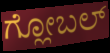
ಗ್ಲೋಬಲ್